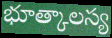
భూత్కాలస్య